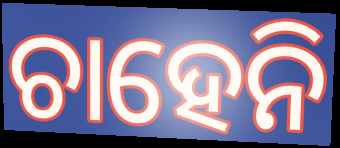
ଚାହେନି